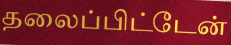
தலைப்பிட்டேன்